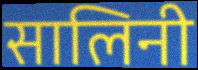
सालिनी